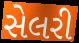
સેલરી